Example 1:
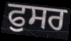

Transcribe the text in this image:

ਫੁਸਰ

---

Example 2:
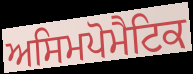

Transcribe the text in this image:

ਅਸਿਮਪੋਮੈਟਿਕ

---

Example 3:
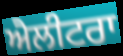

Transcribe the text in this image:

ਐਲੀਟਰਾ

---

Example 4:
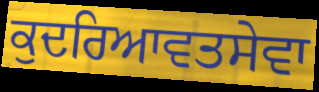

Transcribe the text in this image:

ਕੁਦਰਿਆਵਤਸੇਵਾ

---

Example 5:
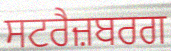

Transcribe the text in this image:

ਸਟਰੈਜ਼ਬਰਗ